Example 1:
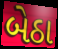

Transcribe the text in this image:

બેઠા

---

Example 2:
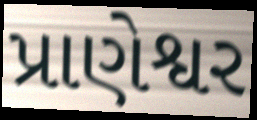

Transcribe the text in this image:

પ્રાણેશ્વર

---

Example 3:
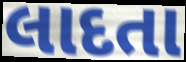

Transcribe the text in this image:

લાદતા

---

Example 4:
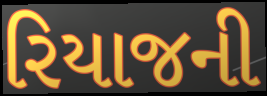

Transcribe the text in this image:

રિયાજની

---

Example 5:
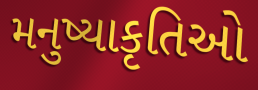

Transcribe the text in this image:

મનુષ્યાકૃતિઓ